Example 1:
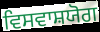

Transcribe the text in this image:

ਵਿਸਵਾਸ਼ਯੋਗ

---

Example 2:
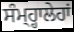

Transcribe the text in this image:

ਸੰਮ੍ਹ੍ਹਾਲੇਹਾਂ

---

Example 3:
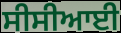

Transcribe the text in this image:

ਸੀਸੀਆਈ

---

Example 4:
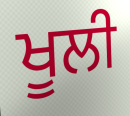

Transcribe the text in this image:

ਖੂਲੀ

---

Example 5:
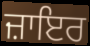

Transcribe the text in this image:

ਜ਼ਾਇਰ